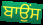
ਬਾਉਂਸ